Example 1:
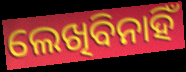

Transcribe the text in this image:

ଲେଖିବିନାହିଁ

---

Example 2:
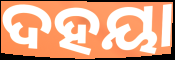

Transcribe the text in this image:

ଦହୟା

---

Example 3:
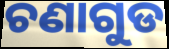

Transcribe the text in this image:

ଚଣାଗୁଡ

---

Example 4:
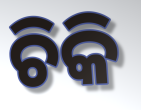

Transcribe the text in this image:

ଚିକି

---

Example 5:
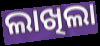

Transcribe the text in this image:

ଲାଖିଲା